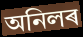
অনিলৰ